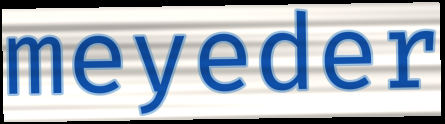
meyeder